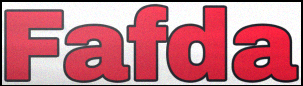
Fafda